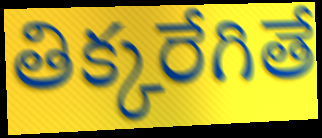
తిక్కరేగితే